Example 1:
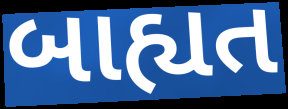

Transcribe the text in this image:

બાહ્યત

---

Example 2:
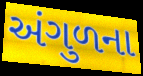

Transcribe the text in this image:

અંગુળના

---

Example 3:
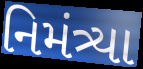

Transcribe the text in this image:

નિમંત્ર્યા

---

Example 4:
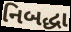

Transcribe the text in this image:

નિબદ્ધા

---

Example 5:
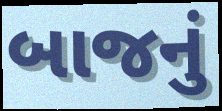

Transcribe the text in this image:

બાજનું